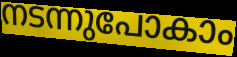
നടന്നുപോകാം